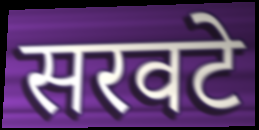
सरवटे